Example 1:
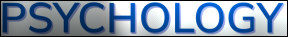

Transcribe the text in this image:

PSYCHOLOGY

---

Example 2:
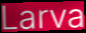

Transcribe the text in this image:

Larva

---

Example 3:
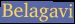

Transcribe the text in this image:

Belagavi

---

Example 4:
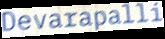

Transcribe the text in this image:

Devarapalli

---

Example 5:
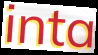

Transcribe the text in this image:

inta